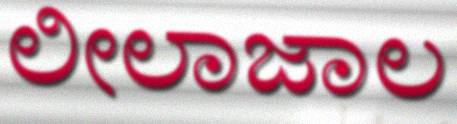
ಲೀಲಾಜಾಲ